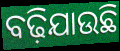
ବଢ଼ିଯାଉଛି